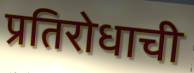
प्रतिरोधाची